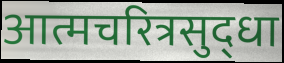
आत्मचरित्रसुद्धा